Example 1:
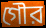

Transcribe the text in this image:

গৌর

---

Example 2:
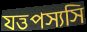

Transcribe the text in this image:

যত্তপস্যসি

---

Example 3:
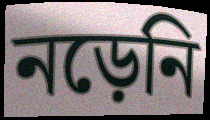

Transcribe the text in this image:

নড়েনি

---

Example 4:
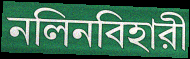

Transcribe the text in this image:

নলিনবিহারী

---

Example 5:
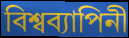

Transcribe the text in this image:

বিশ্বব্যাপিনী